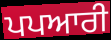
ਪਪਆਰੀ